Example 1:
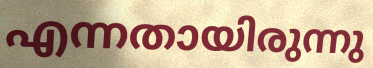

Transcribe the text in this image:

എന്നതായിരുന്നു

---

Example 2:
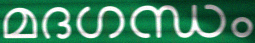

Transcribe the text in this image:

മദഗന്ധം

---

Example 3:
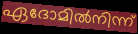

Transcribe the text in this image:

ഏദോമിൽനിന്ന്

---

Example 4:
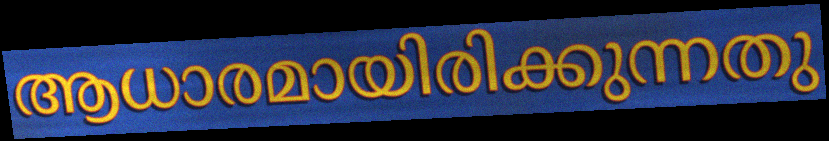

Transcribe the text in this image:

ആധാരമായിരിക്കുന്നതു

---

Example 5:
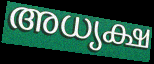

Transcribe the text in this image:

അധ്യക്ഷ